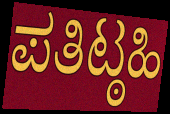
ಪತಿಟ್ಠಹಿ